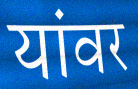
यांवर